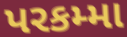
પરકમ્મા